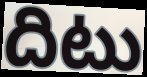
దిటు